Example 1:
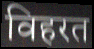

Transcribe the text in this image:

विहरत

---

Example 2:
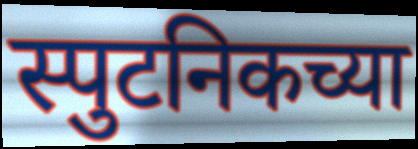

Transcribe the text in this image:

स्पुटनिकच्या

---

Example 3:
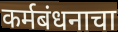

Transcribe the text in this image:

कर्मबंधनाचा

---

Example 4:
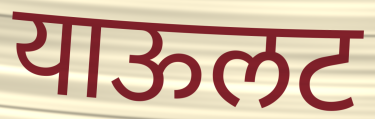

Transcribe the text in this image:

याऊलट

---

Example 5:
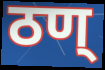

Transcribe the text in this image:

ठण्